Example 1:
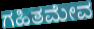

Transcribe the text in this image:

ಗಹಿತಮೇವ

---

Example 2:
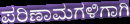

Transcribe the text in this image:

ಪರಿಣಾಮಗಳಿಗಾಗಿ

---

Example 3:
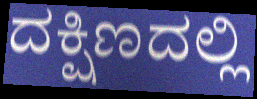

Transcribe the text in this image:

ದಕ್ಷಿಣದಲ್ಲಿ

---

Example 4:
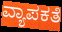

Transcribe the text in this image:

ವ್ಯಾಪಕತೆ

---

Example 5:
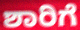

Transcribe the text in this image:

ಶಾರಿಗೆ